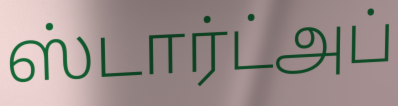
ஸ்டார்ட்அப்